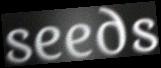
seeds